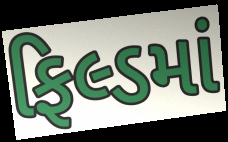
ફિલ્ડમાં